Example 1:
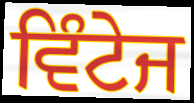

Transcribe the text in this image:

ਵਿੰਟੇਜ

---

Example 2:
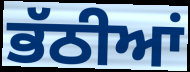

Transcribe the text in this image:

ਭੱਠੀਆਂ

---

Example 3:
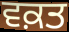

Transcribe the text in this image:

ਵਕ਼ਤ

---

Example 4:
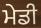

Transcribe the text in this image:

ਮੇਡੀ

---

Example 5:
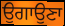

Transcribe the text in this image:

ਉਗਾਉਣਾ